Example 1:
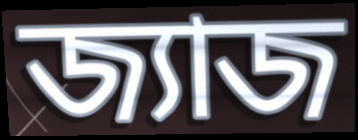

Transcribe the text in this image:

জ্যাজ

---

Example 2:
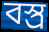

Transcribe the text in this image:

বস্ত্র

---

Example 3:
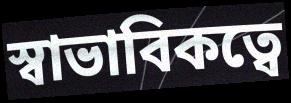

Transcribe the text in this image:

স্বাভাবিকত্বে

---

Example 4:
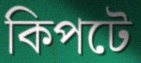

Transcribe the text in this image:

কিপটে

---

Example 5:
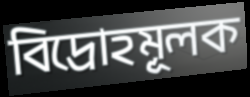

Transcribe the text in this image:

বিদ্রোহমূলক